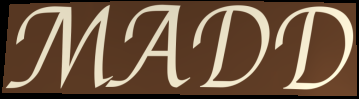
MADD